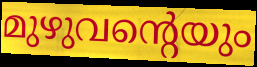
മുഴുവന്റെയും